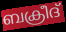
ബക്രീദ്